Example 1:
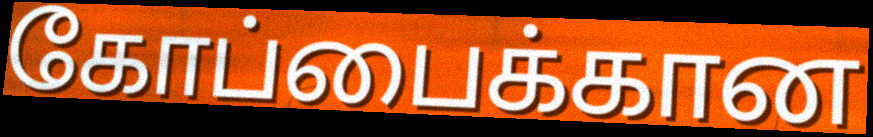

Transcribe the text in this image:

கோப்பைக்கான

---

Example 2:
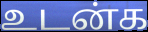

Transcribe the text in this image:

உடன்க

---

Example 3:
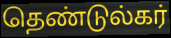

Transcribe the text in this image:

தெண்டுல்கர்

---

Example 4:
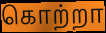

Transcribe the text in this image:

கொற்றா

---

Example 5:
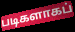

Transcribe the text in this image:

படிகளாகப்